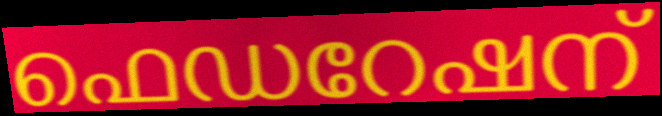
ഫെഡറേഷന്